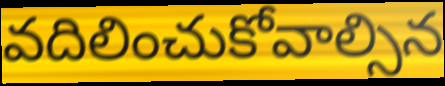
వదిలించుకోవాల్సిన